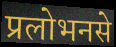
प्रलोभनसे